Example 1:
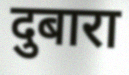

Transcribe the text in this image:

दुबारा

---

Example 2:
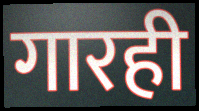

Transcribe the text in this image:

गारही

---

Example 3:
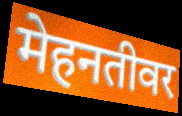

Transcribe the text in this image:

मेहनतीवर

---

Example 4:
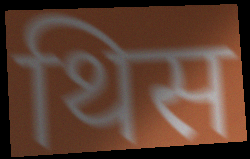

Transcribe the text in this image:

थिस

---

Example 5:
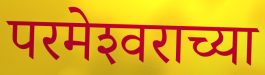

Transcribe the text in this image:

परमेश्‍वराच्या